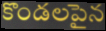
కొండలపైన